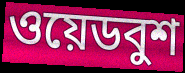
ওয়েডবুশ